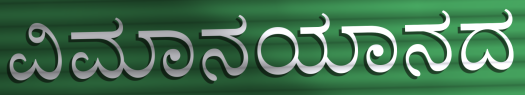
ವಿಮಾನಯಾನದ